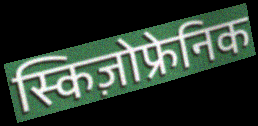
स्किज़ोफ्रेनिक